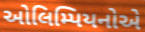
ઓલિમ્પિયનોએ